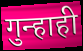
गुन्हाही